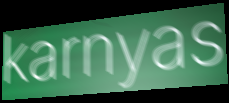
karnyas